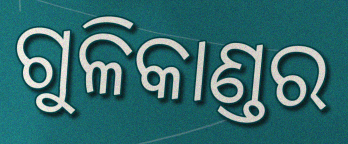
ଗୁଳିକାଣ୍ଡର